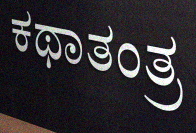
ಕಥಾತಂತ್ರ